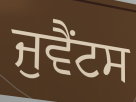
ਜੁਵੈਂਟਸ